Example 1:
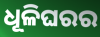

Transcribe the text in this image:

ଧୂଳିଘରର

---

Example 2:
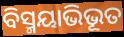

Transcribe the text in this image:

ବିସ୍ମୟାଭିଭୂତ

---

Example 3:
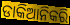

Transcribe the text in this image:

ଡାକିଆନିକରି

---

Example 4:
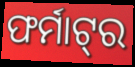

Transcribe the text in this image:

ଫର୍ମାଟ୍‌ର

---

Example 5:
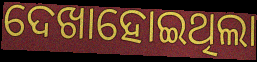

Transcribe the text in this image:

ଦେଖାହୋଇଥିଲା